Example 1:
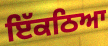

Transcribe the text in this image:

ਇੱਕਠਿਆ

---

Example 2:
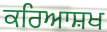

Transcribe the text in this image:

ਕਰਿਆਸ਼ਖ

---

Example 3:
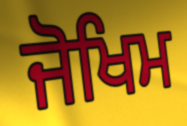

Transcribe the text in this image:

ਜੋਖਿਮ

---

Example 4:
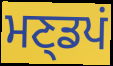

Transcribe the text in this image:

ਮਣ੍ਡਪਂ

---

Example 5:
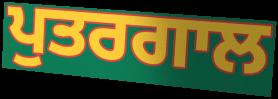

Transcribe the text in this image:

ਪੁਤਰਗਾਲ